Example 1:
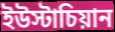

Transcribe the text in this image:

ইউস্টাচিয়ান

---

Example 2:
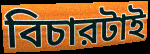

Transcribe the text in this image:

বিচারটাই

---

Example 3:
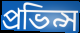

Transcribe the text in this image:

প্রভিন্স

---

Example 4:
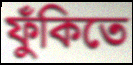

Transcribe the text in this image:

ফুঁকিতে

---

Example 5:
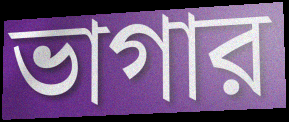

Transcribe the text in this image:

ভাগার